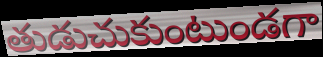
తుడుచుకుంటుండగా